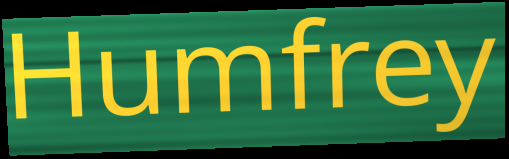
Humfrey